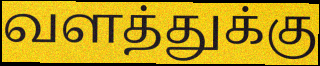
வளத்துக்கு